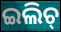
ଇଲିଚ୍